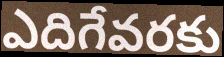
ఎదిగేవరకు